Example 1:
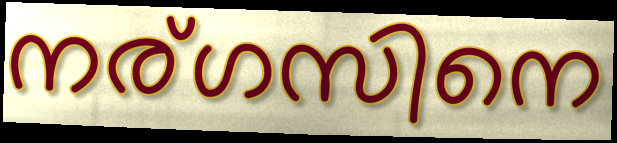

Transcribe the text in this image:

നര്ഗസിനെ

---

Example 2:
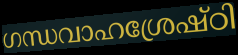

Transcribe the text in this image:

ഗന്ധവാഹശ്രേഷ്ഠി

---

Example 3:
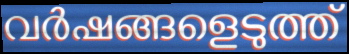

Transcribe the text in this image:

വർഷങ്ങളെടുത്ത്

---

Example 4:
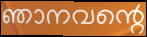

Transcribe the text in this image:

ഞാനവന്റെ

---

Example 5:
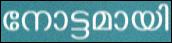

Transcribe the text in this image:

നോട്ടമായി